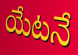
యేటనే